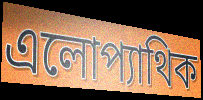
এলোপ্যাথিক